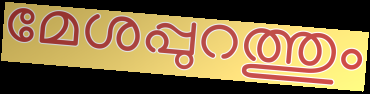
മേശപ്പുറത്തും